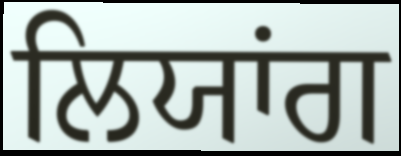
ਲਿਯਾਂਗ